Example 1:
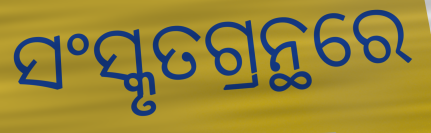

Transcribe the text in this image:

ସଂସ୍କୃତଗ୍ରନ୍ଥରେ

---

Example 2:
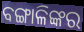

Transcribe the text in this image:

ବଙ୍ଗାଳିଙ୍କର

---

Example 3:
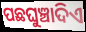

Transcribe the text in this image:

ପଛଘୁଞ୍ଚାଦିଏ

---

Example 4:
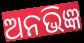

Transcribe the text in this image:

ଅନଭିଜ୍ଞ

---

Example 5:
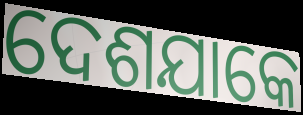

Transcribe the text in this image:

ଦେଶଯାକେ